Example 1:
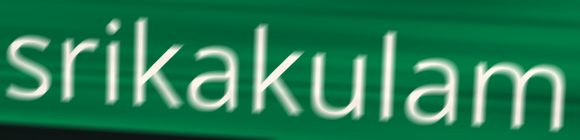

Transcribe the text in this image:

srikakulam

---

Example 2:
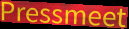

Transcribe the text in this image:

Pressmeet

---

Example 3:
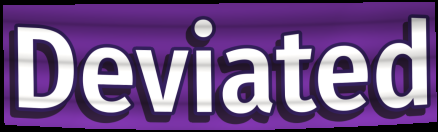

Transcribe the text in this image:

Deviated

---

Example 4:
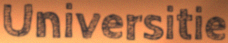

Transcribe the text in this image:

Universitie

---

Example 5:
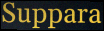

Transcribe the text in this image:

Suppara